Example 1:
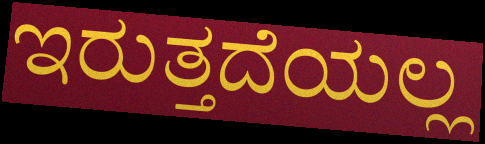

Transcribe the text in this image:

ಇರುತ್ತದೆಯಲ್ಲ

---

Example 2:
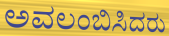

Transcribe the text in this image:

ಅವಲಂಬಿಸಿದರು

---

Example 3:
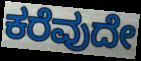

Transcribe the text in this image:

ಕರೆವುದೇ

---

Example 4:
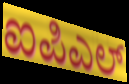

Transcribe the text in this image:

ಐಪಿಎಲ್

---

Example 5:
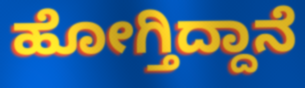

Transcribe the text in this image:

ಹೋಗ್ತಿದ್ದಾನೆ